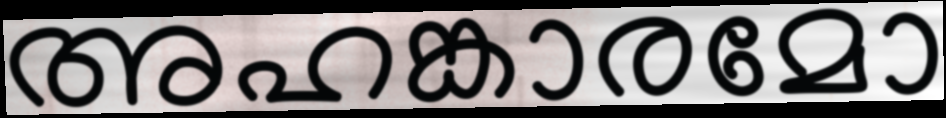
അഹങ്കാരമോ